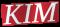
KIM